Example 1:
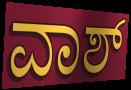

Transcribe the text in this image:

ವಾಶ್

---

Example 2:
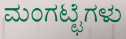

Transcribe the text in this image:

ಮಂಗಟ್ಟೆಗಳು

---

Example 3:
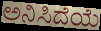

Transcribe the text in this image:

ಅನಿಸಿದೆಯೆ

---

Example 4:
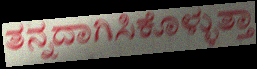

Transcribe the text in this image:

ತನ್ನದಾಗಿಸಿಕೊಳ್ಳುತ್ತಾ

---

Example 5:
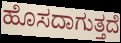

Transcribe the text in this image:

ಹೊಸದಾಗುತ್ತದೆ